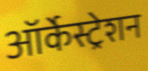
ऑर्केस्ट्रेशन